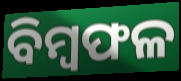
ବିମ୍ୱଫଳ